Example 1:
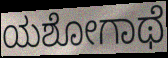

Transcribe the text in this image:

ಯಶೋಗಾಥೆ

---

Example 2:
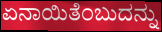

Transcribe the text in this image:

ಏನಾಯಿತೆಂಬುದನ್ನು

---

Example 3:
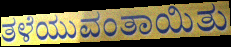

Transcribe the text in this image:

ತಳೆಯುವಂತಾಯಿತು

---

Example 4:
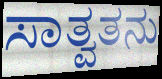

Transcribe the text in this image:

ಸಾತ್ವತನು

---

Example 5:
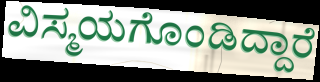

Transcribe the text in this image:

ವಿಸ್ಮಯಗೊಂಡಿದ್ದಾರೆ